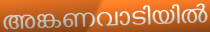
അങ്കണവാടിയിൽ